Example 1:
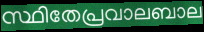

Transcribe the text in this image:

സ്ഥിതേപ്രവാലബാല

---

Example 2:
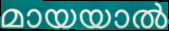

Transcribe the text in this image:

മായയാൽ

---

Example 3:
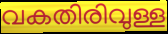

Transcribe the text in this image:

വകതിരിവുള്ള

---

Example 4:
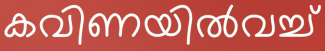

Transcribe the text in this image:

കവിണയിൽവച്ച്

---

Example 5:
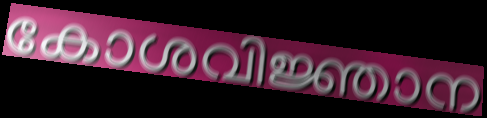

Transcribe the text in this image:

കോശവിജ്ഞാന